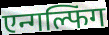
एन्गल्फिंग